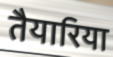
तैयारिया